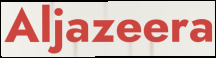
Aljazeera